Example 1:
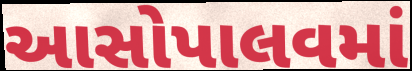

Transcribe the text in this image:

આસોપાલવમાં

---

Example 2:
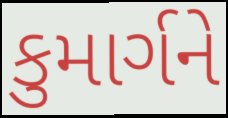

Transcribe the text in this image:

કુમાર્ગને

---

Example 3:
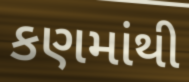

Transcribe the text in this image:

કણમાંથી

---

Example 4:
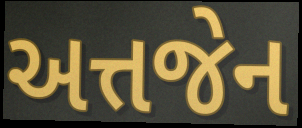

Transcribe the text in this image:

અત્તજેન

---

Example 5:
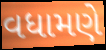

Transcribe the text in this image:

વધામણે